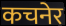
कचनेर